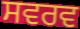
ਸਵਰਵ